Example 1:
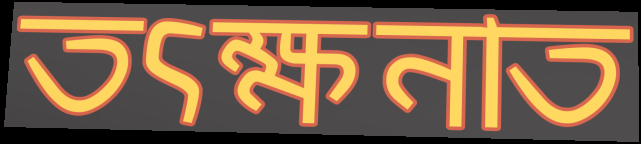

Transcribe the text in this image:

তৎক্ষনাত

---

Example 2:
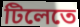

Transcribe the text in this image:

টিলেতে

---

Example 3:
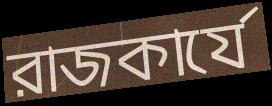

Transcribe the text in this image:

রাজকার্যে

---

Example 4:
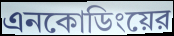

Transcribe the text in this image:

এনকোডিংয়ের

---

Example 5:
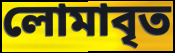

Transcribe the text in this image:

লোমাবৃত